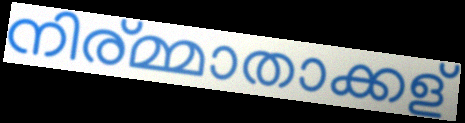
നിര്മ്മാതാക്കള്